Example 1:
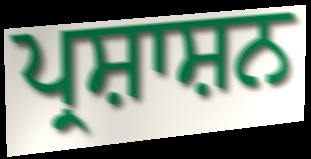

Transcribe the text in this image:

ਪ੍ਰਸ਼ਾਸ਼ਨ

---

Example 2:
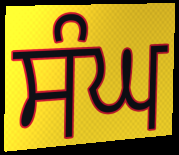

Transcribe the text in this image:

ਸੰਘ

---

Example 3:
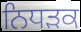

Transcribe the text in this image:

ਨਿਧਡ਼ਕ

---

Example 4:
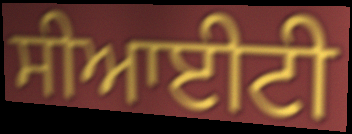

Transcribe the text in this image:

ਸੀਆਈਟੀ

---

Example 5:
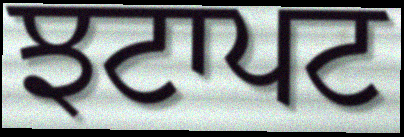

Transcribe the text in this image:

ਝਟਾਪਟ